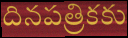
దినపత్రికకు